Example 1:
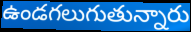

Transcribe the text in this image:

ఉండగలుగుతున్నారు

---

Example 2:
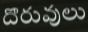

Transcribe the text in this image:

దొరువులు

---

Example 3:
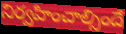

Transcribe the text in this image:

నిర్వహించాల్సిందే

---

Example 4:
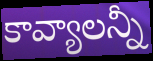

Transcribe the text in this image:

కావ్యాలన్నీ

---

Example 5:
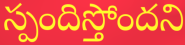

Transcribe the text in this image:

స్పందిస్తోందని